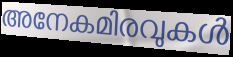
അനേകമിരവുകൾ